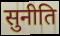
सुनीति